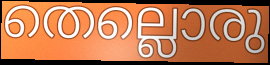
തെല്ലൊരു